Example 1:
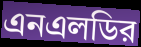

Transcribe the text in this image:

এনএলডির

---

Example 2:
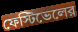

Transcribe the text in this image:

ফেস্টিভেলের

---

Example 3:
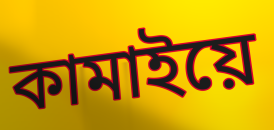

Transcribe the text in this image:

কামাইয়ে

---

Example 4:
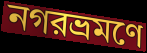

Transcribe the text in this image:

নগরভ্রমণে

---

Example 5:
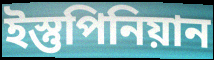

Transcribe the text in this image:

ইস্তুপিনিয়ান